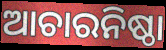
ଆଚାରନିଷ୍ଠା